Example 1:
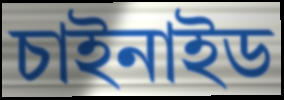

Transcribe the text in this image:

চাইনাইড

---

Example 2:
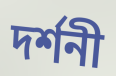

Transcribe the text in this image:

দৰ্শনী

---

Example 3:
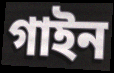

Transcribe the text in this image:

গাইন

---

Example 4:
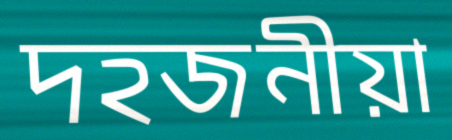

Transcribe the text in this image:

দহজনীয়া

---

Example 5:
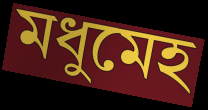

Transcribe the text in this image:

মধুমেহ